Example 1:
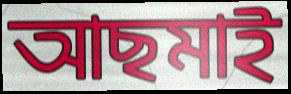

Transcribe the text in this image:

আছমাই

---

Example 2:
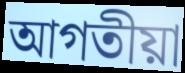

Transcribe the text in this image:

আগতীয়া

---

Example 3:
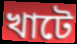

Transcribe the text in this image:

খাটে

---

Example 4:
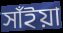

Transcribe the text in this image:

সাঁইয়া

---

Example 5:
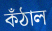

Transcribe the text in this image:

কঁঠাল